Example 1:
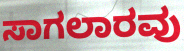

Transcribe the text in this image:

ಸಾಗಲಾರವು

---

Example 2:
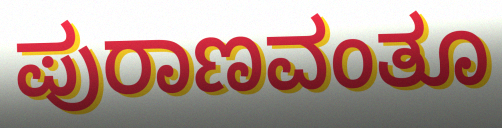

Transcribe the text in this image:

ಪುರಾಣವಂತೂ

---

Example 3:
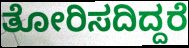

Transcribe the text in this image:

ತೋರಿಸದಿದ್ದರೆ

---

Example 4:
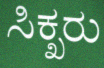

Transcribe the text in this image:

ಸಿಕ್ಖರು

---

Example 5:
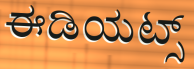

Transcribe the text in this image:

ಈಡಿಯಟ್ಸ್